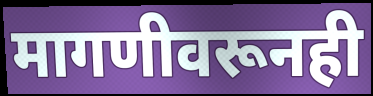
मागणीवरूनही